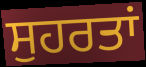
ਸੁਹਰਤਾਂ